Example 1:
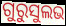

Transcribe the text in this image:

ଗୁରୁସୁଲଭ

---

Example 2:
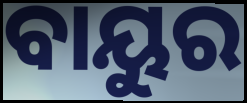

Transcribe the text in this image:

ବାୟୁର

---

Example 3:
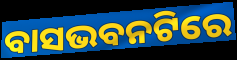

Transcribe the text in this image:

ବାସଭବନଟିରେ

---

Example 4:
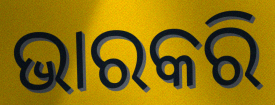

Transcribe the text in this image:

ଭାରକରି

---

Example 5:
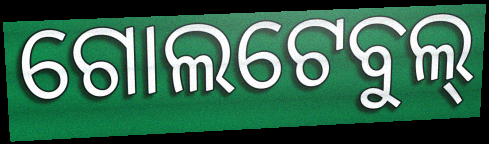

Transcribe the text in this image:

ଗୋଲଟେବୁଲ୍